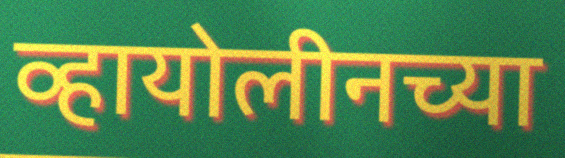
व्हायोलीनच्या